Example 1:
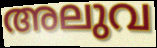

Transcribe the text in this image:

അലുവ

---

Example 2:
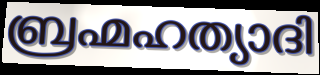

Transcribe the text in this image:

ബ്രഹ്മഹത്യാദി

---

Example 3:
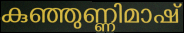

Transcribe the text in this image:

കുഞ്ഞുണ്ണിമാഷ്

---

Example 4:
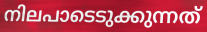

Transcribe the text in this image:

നിലപാടെടുക്കുന്നത്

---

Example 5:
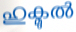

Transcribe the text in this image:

ഹുക്മുൽ